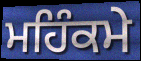
ਮਹਿੰਕਮੇ